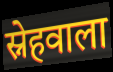
स्नेहवाला